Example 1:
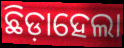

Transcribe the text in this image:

ଛିଡ଼ାହେଲା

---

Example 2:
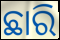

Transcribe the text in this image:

ଛାରି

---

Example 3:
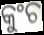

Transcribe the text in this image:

କୁଂଚ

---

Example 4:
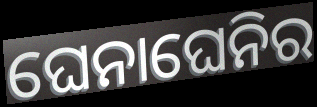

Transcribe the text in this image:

ଘେନାଘେନିର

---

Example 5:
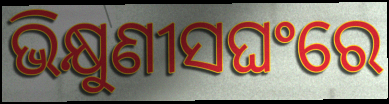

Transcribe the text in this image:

ଭିକ୍ଷୁଣୀସଘଂରେ